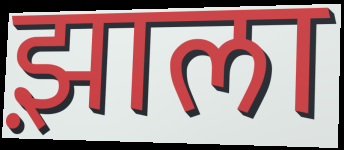
झ़ाला